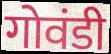
गोवंडी